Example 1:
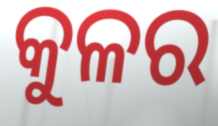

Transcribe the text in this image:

କୁଳର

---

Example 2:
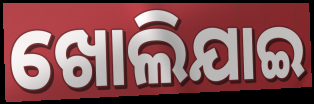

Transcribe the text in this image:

ଖୋଲିଯାଇ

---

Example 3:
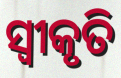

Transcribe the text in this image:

ସ୍ବୀକୃତି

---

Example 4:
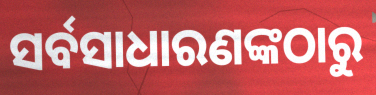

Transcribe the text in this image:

ସର୍ବସାଧାରଣଙ୍କଠାରୁ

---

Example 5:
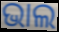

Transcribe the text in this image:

ଭାଲ